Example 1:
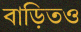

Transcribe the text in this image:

বাড়িতও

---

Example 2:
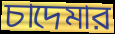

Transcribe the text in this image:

চাদেমার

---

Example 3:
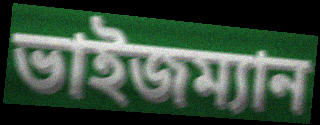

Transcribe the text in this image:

ভাইজম্যান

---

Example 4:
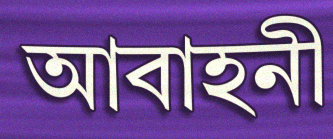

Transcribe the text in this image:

আবাহনী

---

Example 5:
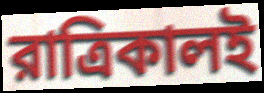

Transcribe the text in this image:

রাত্রিকালই